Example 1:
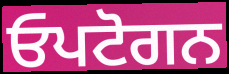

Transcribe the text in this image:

ਓਪਟੋਗਨ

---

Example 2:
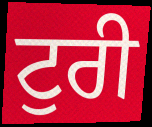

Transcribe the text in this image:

ਟੁਰੀ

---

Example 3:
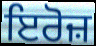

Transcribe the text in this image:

ਇਰੋਜ਼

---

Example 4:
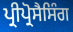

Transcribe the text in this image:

ਪ੍ਰੀਪ੍ਰੋਸੈਸਿੰਗ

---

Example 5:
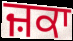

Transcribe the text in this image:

ਜ਼ਕਾ